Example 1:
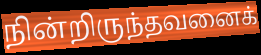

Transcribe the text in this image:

நின்றிருந்தவனைக்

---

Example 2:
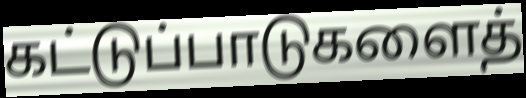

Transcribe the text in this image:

கட்டுப்பாடுகளைத்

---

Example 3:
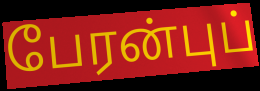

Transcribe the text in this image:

பேரன்புப்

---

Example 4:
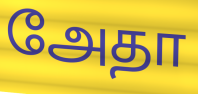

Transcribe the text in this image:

அேதா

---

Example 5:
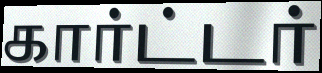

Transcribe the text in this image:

கார்ட்டர்